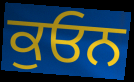
ਕੁਓਨ